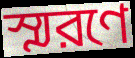
স্মরণে